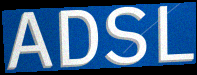
ADSL